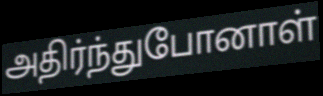
அதிர்ந்துபோனாள்